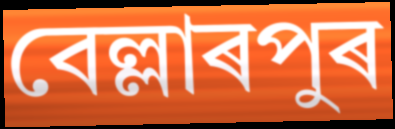
বেল্লাৰপুৰ